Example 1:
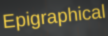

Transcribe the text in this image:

Epigraphical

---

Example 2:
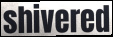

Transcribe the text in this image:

shivered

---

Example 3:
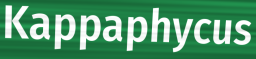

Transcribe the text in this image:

Kappaphycus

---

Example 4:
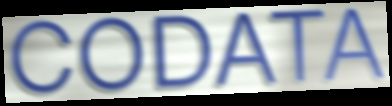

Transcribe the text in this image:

CODATA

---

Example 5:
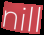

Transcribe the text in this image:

nill